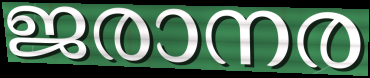
ജരാനര